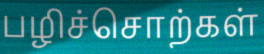
பழிச்சொற்கள்